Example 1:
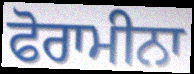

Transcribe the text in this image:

ਫੋਰਾਮੀਨਾ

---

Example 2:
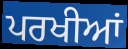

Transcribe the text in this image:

ਪਰਖੀਆਂ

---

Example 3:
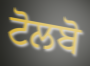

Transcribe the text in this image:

ਟੋਲਬੋ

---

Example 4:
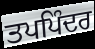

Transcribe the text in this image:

ਤਪਪਿੰਦਰ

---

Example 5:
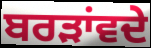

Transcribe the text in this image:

ਬਰੜਾਂਵਦੇ